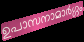
ഉപാസനാമാർഗ്ഗം